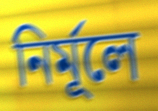
নির্মূলে